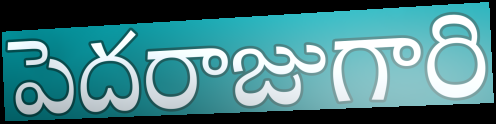
పెదరాజుగారి